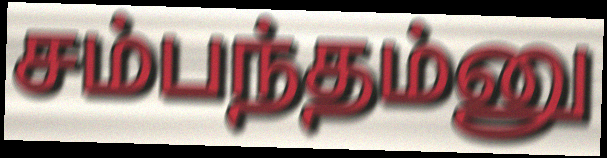
சம்பந்தம்னு